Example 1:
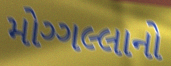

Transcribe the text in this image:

મોગ્ગલ્લાનો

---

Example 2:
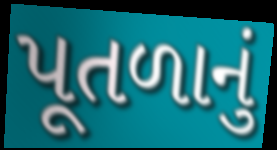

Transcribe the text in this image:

પૂતળાનું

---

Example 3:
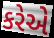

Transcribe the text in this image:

કરેએ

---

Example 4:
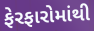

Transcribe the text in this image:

ફેરફારોમાંથી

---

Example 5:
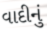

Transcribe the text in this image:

વાદીનું